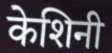
केशिनी